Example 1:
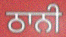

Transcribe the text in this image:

ਠਾਨੀ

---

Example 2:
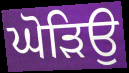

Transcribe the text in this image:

ਘੋੜਿਉ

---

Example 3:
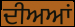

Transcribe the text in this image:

ਦੀਅਆਂ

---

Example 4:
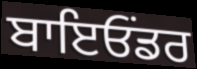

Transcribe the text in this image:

ਬਾਇਓਂਡਰ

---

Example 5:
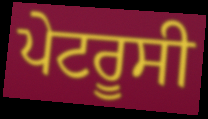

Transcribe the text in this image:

ਪੇਟਰੂਸੀ